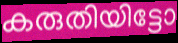
കരുതിയിട്ടോ